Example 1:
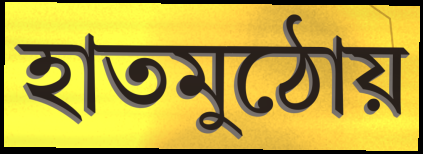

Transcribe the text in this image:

হাতমুঠোয়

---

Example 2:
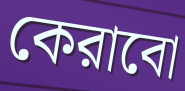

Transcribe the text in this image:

কেরাবো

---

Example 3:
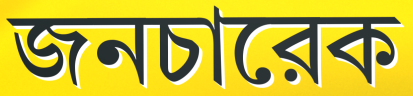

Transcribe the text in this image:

জনচারেক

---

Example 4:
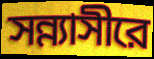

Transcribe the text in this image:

সন্ন্যাসীরে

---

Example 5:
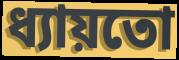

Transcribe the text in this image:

ধ্যায়তো